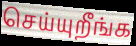
செய்யுறீங்க